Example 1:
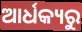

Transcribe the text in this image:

ଆର୍ଧକ୍ୟରୁ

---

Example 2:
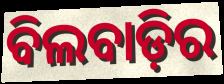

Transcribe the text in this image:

ବିଲବାଡ଼ିର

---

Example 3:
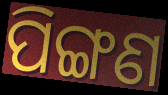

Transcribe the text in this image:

ପିଙ୍ଗଣ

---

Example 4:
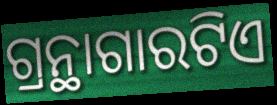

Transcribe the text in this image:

ଗ୍ରନ୍ଥାଗାରଟିଏ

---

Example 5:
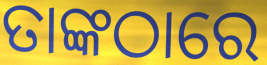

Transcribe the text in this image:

ତାଙ୍କଠାରେ